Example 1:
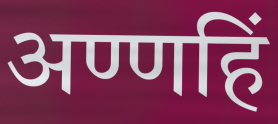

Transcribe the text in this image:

अण्णहिं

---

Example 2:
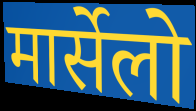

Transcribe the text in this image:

मार्सेलो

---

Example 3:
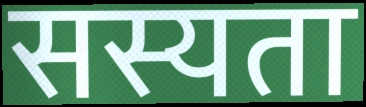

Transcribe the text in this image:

सस्यता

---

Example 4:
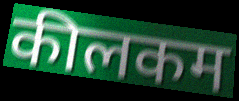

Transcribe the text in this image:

कीलकम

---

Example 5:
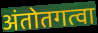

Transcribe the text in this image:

अंतोतगत्वा